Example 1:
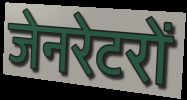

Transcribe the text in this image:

जेनरेटरों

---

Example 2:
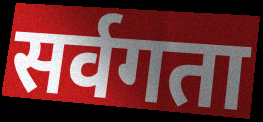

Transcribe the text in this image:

सर्वगता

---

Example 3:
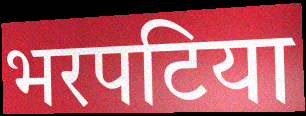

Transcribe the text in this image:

भरपटिया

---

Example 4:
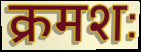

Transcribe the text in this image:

क्रमशः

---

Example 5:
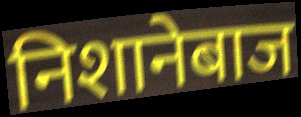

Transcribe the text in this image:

निशानेबाज